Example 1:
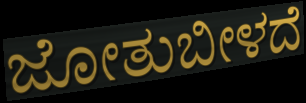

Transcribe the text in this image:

ಜೋತುಬೀಳದೆ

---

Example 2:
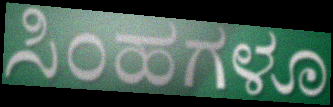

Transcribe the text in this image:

ಸಿಂಹಗಳೂ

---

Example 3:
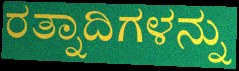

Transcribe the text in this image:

ರತ್ನಾದಿಗಳನ್ನು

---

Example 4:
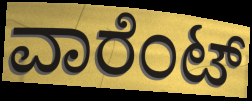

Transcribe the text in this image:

ವಾರೆಂಟ್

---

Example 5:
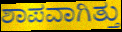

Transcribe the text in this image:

ಶಾಪವಾಗಿತ್ತು